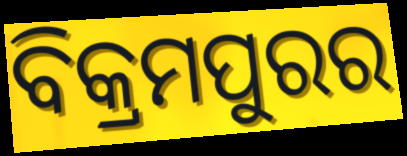
ବିକ୍ରମପୁରର